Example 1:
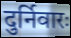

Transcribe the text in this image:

दुर्निवारः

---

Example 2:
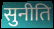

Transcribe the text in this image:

सुनीति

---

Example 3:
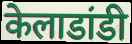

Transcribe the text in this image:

केलाडांडी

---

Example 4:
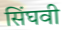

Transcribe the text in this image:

सिंघवी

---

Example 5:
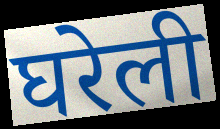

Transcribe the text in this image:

घरेली